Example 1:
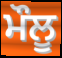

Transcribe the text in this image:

ਮੌਲੂ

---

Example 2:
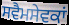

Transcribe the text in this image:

ਸਵੈਮਸੇਵਕਾਂ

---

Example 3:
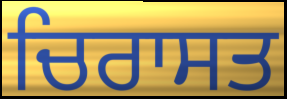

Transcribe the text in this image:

ਚਿਰਾਸਤ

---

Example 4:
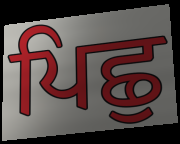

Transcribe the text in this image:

ਪਿਛੁ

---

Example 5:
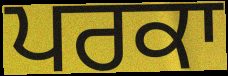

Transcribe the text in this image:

ਪਰਕਾ